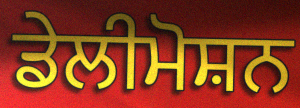
ਡੇਲੀਮੋਸ਼ਨ